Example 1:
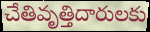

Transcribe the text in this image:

చేతివృత్తిదారులకు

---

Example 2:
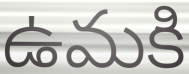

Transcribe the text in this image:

ఉమకి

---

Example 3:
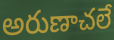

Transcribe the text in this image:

అరుణాచలే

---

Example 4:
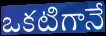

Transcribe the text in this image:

ఒకటిగానే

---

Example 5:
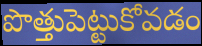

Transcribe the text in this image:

పొత్తుపెట్టుకోవడం